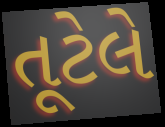
તૂટેલે